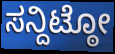
ಸನ್ದಿಟ್ಠೋ